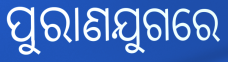
ପୁରାଣଯୁଗରେ